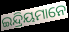
ଇନ୍ଦ୍ରିୟମାନେ